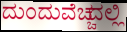
ದುಂದುವೆಚ್ಚದಲ್ಲಿ